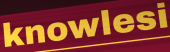
knowlesi